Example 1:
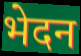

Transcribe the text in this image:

भेदन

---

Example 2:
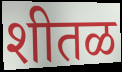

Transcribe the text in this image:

शीतळ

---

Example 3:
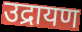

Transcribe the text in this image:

उद्रायण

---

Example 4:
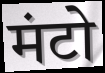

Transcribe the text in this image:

मंटो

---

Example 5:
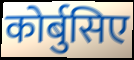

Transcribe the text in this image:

कोर्बुसिए